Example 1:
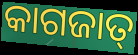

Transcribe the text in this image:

କାଗଜାତ୍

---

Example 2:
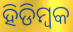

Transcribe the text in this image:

ହିଡିମ୍ବକ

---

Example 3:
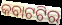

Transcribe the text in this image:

କବାଟଟିର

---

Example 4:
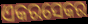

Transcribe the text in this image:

ଏକରସେକର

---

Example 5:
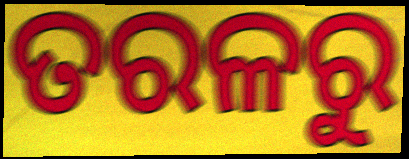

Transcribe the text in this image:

ତରଳରୁ